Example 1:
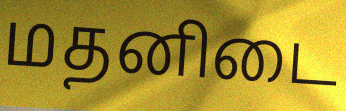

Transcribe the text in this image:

மதனிடை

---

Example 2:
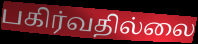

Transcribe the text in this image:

பகிர்வதில்லை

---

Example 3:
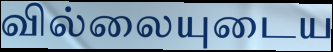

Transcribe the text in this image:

வில்லையுடைய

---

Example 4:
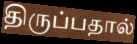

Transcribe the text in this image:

திருப்பதால்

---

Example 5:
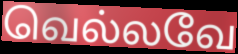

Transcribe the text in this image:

வெல்லவே